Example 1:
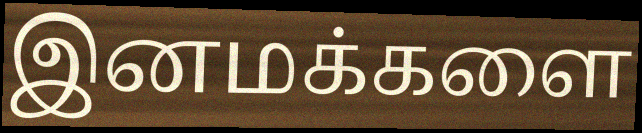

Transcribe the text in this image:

இனமக்களை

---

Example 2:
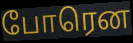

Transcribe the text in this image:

போரென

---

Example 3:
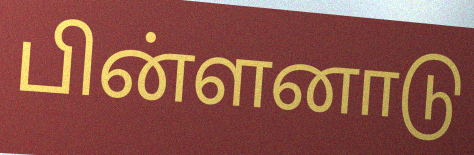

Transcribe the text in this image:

பின்ளனாடு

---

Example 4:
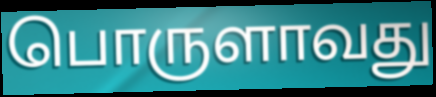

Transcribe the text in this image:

பொருளாவது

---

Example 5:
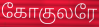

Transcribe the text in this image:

கோகுலரே